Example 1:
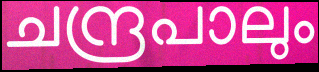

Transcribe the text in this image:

ചന്ദ്രപാലും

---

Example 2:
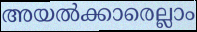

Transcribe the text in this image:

അയൽക്കാരെല്ലാം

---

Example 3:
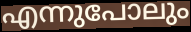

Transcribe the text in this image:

എന്നുപോലും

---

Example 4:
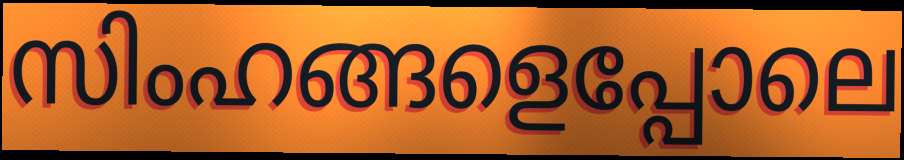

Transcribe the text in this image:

സിംഹങ്ങളെപ്പോലെ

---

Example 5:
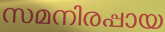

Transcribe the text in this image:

സമനിരപ്പായ